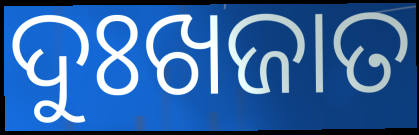
ଦୁଃଖଜାତ